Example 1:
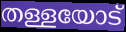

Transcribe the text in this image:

തള്ളയോട്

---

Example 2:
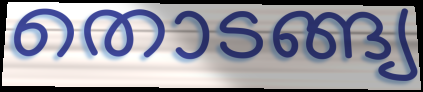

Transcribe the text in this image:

തൊടങ്ങ്യ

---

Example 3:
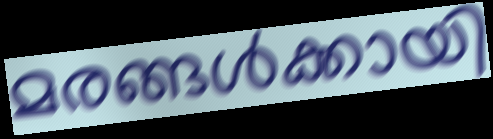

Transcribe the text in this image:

മരങ്ങൾക്കായി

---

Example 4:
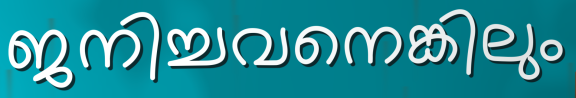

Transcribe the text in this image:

ജനിച്ചവനെങ്കിലും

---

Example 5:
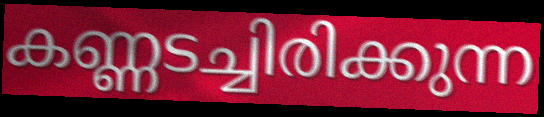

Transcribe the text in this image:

കണ്ണടച്ചിരിക്കുന്ന